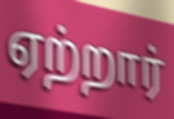
ஏற்றார்